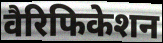
वैरिफिकेशन